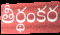
తీర్థంకర